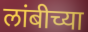
लांबीच्या